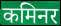
कमिनर